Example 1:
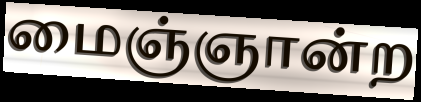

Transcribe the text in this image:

மைஞ்ஞான்ற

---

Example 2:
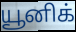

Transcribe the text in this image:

யூனிக்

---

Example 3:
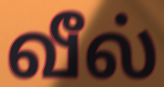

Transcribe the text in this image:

வீல்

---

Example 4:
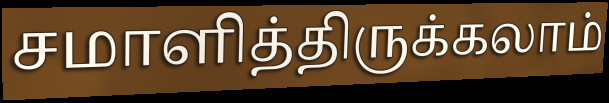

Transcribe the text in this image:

சமாளித்திருக்கலாம்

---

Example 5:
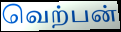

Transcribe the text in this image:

வெற்பன்